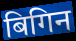
बिगिन